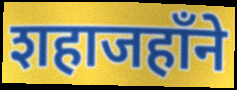
शहाजहाँने